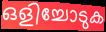
ഒളിച്ചോടുക